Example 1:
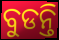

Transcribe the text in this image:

ବୁଡନ୍ତି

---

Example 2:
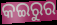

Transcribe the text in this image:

କଇରୁର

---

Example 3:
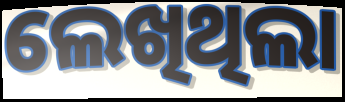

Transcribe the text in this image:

ଲେଖିଥିଲା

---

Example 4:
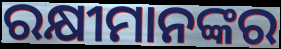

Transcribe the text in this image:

ରକ୍ଷୀମାନଙ୍କର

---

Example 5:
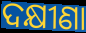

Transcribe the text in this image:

ଦକ୍ଷୀଣା